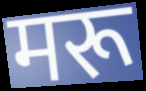
मरू